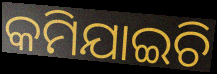
କମିଯାଇଚି